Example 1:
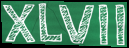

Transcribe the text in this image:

XLVII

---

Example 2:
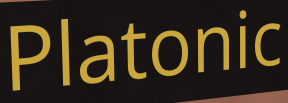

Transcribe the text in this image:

Platonic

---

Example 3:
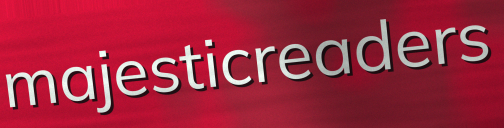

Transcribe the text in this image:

majesticreaders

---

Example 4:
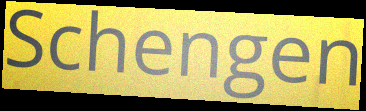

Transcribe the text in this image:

Schengen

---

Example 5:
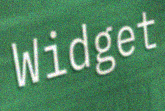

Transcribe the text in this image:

Widget